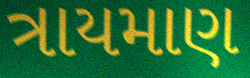
ત્રાયમાણ